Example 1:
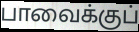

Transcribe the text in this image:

பாவைக்குப்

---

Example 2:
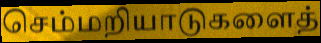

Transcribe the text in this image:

செம்மறியாடுகளைத்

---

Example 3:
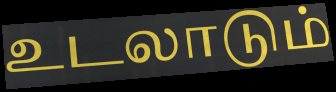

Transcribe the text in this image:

உடலாடும்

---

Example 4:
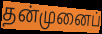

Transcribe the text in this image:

தன்முனைப்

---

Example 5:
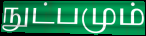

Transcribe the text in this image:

நுட்பமும்